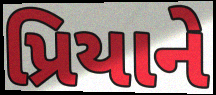
પ્રિયાને